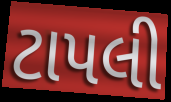
ટાપલી